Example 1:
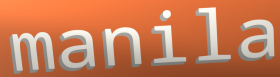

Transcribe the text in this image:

manila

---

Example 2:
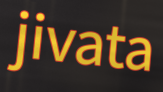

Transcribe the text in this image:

jivata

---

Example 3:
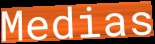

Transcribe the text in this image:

Medias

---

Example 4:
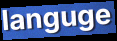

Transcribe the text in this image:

languge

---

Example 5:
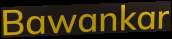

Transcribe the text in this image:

Bawankar